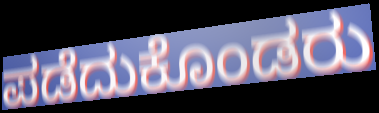
ಪಡೆದುಕೊಂಡರು